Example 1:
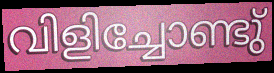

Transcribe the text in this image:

വിളിച്ചോണ്ടു്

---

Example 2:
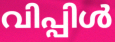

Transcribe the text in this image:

വിപ്പിൾ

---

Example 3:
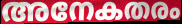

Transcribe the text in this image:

അനേകതരം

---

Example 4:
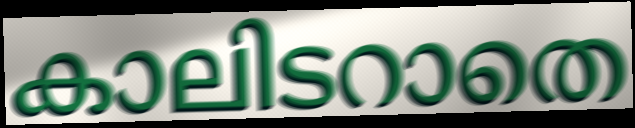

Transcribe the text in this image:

കാലിടറാതെ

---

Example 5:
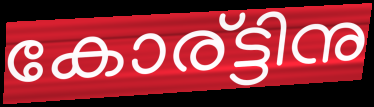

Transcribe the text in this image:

കോര്ട്ടിനു